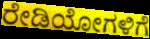
ರೇಡಿಯೋಗಳಿಗೆ